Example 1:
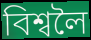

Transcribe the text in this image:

বিশ্বলৈ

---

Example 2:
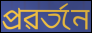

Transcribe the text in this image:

প্ৰৱৰ্তনে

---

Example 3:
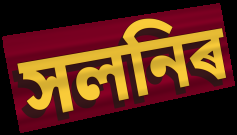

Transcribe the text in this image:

সলনিৰ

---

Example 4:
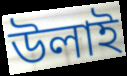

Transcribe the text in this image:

উলাই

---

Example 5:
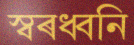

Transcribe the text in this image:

স্বৰধ্বনি